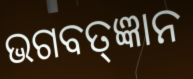
ଭଗବତ୍‌ଜ୍ଞାନ